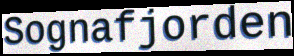
Sognafjorden